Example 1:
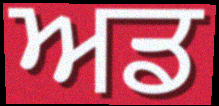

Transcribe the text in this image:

ਅਡ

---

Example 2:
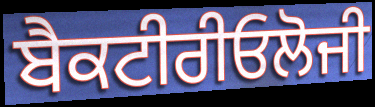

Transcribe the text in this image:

ਬੈਕਟੀਰੀਓਲੋਜੀ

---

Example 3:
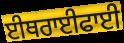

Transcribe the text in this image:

ਈਥਰਾਈਫਾਈ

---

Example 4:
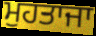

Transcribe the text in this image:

ਮੁਹਤਾਜਾ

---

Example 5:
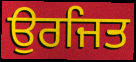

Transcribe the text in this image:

ਉਰਜਿਤ